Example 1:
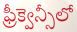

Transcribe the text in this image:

ఫ్రీక్వెన్సీలో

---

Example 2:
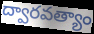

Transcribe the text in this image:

ద్వారవత్యాం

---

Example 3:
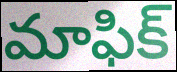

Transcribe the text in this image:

మాఫిక్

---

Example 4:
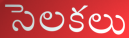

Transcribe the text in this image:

సెలకలు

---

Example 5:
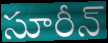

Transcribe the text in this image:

సూరీన్